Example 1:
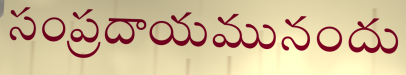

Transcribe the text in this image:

సంప్రదాయమునందు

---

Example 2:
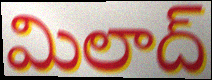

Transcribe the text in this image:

మిలాద్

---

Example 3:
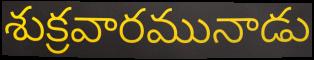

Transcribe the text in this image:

శుక్రవారమునాడు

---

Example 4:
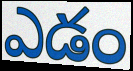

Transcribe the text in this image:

ఎడం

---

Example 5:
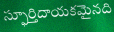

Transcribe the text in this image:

స్ఫూర్తిదాయకమైనది